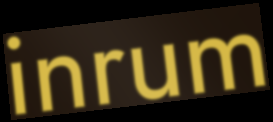
inrum